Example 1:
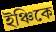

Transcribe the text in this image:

ইঞ্চিকে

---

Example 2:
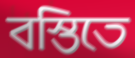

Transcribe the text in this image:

বস্তিতে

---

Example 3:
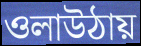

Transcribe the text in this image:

ওলাউঠায়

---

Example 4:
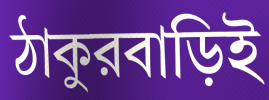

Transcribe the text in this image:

ঠাকুরবাড়িই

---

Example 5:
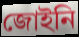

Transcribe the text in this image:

জোইনি